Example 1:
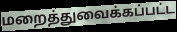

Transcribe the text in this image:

மறைத்துவைக்கப்பட்ட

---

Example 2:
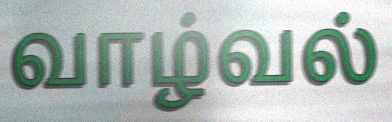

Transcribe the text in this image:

வாழ்வல்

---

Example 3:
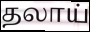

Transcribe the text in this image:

தலாய்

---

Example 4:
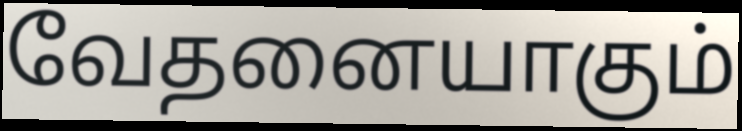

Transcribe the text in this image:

வேதனையாகும்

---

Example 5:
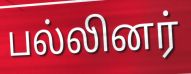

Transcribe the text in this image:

பல்லினர்